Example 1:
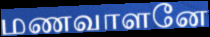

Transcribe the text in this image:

மணவாளனே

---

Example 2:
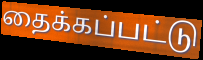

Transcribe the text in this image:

தைக்கப்பட்டு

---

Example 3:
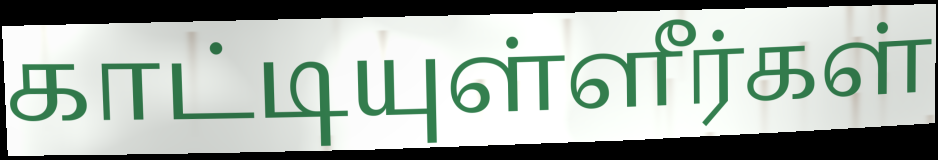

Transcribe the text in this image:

காட்டியுள்ளீர்கள்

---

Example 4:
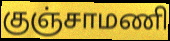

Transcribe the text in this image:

குஞ்சாமணி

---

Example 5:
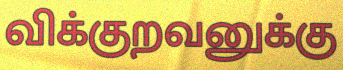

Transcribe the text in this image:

விக்குறவனுக்கு